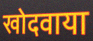
खोदवाया